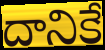
దానికే